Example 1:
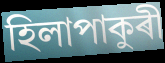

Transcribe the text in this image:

হিলাপাকুৰী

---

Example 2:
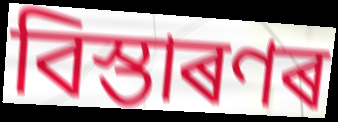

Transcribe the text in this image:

বিস্তাৰণৰ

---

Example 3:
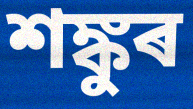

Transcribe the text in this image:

শঙ্কুৰ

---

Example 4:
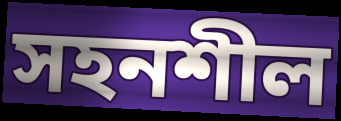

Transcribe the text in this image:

সহনশীল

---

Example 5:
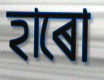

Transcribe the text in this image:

হাৰো